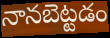
నానబెట్టడం